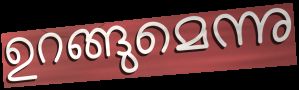
ഉറങ്ങുമെന്നു